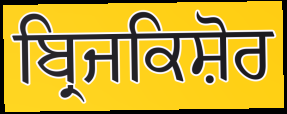
ਬ੍ਰਿਜਕਿਸ਼ੋਰ